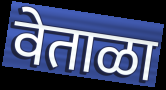
वेताळा